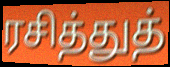
ரசித்துத்